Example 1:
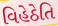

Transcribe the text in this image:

વિહેઠેતિ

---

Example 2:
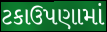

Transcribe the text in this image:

ટકાઉપણામાં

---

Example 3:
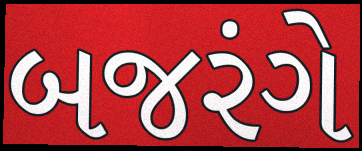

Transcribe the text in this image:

બજરંગે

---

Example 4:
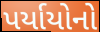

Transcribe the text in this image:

પર્યાયોનો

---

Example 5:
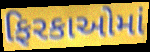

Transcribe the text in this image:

ફિરકાઓમાં